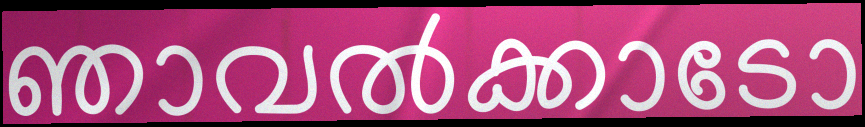
ഞാവൽക്കാടോ